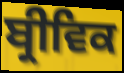
ਬ੍ਰੀਵਿਕ